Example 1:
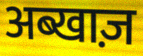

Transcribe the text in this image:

अब्खाज़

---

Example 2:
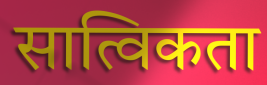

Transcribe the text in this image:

सात्विकता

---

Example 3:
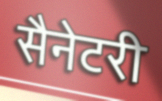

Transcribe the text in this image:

सैनेटरी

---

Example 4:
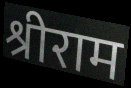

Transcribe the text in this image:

श्रीराम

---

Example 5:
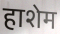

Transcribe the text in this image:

हाशेम